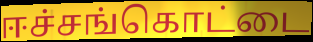
ஈச்சங்கொட்டை